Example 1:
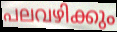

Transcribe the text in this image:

പലവഴിക്കും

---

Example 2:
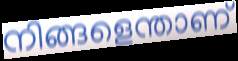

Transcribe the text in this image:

നിങ്ങളെന്താണ്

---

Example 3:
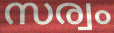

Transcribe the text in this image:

സര്വം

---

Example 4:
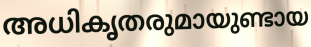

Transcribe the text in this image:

അധികൃതരുമായുണ്ടായ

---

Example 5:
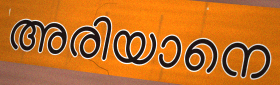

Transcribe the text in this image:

അരിയാനെ